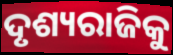
ଦୃଶ୍ୟରାଜିକୁ